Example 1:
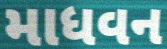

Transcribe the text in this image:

માધવન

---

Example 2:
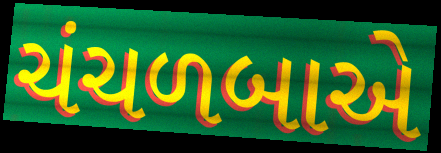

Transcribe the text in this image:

ચંચળબાએ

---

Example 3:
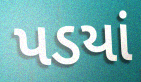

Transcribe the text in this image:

પડયાં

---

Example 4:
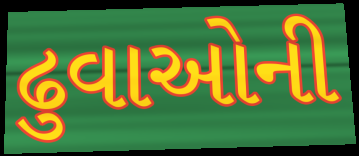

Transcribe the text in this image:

ઢુવાઓની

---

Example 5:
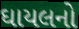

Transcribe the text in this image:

ઘાયલનો